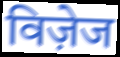
विज़ेज